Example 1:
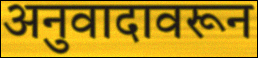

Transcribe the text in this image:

अनुवादावरून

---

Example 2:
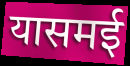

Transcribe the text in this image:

यासमई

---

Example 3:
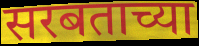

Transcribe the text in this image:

सरबताच्या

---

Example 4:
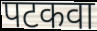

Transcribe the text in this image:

पटकवा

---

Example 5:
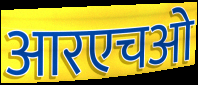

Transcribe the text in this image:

आरएचओ